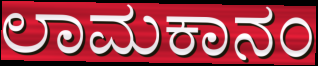
ಲಾಮಕಾನಂ